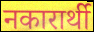
नकारार्थी